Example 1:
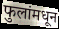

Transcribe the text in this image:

फुलांमधून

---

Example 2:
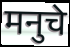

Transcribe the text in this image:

मनुचे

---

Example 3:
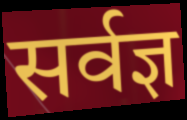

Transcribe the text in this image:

सर्वज्ञ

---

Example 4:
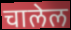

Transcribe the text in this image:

चालेल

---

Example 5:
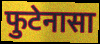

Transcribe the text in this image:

फुटेनासा